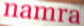
namra